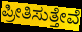
ಪ್ರೀತಿಸುತ್ತೇವೆ